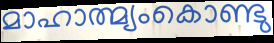
മാഹാത്മ്യംകൊണ്ടു